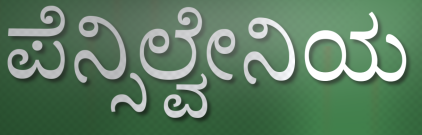
ಪೆನ್ಸಿಲ್ವೇನಿಯ